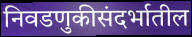
निवडणुकीसंदर्भातील